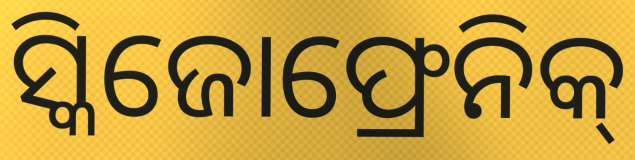
ସ୍କିଜୋଫ୍ରେନିକ୍